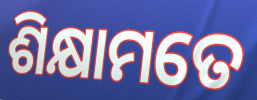
ଶିକ୍ଷାମତେ